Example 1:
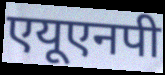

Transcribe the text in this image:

एयूएनपी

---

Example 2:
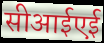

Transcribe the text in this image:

सीआईएई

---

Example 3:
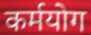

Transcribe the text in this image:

कर्मयोग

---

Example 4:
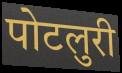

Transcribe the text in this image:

पोटलुरी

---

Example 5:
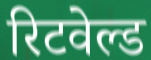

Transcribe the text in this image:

रिटवेल्ड